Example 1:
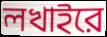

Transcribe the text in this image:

লখাইরে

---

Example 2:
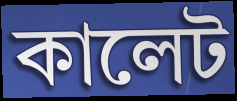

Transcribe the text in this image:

কালেট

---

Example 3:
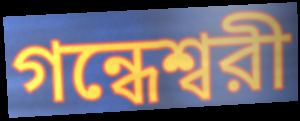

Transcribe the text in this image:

গন্ধেশ্বরী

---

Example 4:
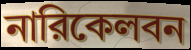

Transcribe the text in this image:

নারিকেলবন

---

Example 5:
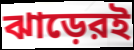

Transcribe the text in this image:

ঝাড়েরই